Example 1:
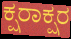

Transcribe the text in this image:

ಕ್ಷರಾಕ್ಷರ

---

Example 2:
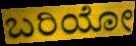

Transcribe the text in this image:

ಬರಿಯೋ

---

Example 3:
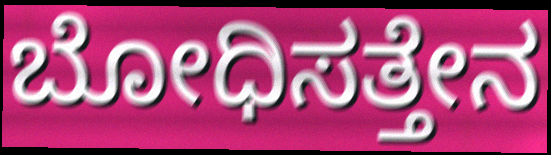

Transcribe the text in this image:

ಬೋಧಿಸತ್ತೇನ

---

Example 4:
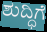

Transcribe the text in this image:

ಶುದ್ಧಿಗೆ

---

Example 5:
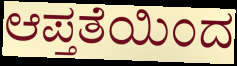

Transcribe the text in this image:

ಆಪ್ತತೆಯಿಂದ